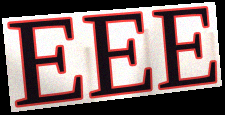
EEE